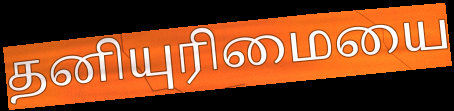
தனியுரிமையை